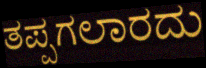
ತಪ್ಪಗಲಾರದು